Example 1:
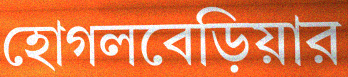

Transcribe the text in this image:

হোগলবেড়িয়ার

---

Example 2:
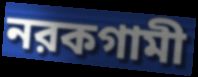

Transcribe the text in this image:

নরকগামী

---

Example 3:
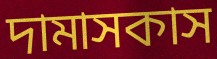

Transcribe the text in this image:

দামাসকাস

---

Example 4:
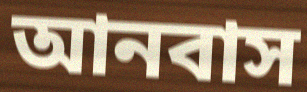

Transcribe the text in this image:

আনবাস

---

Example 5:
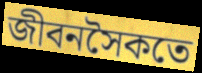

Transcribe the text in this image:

জীবনসৈকতে